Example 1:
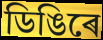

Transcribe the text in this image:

ডিঙিৰে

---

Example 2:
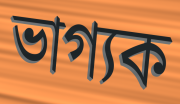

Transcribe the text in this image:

ভাগ্যক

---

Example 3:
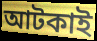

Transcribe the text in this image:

আটকাই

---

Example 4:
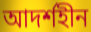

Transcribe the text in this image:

আদৰ্শহীন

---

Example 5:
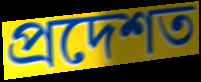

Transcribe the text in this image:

প্ৰদেশত